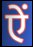
ऐं